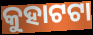
କୁହାଟଟା